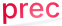
prec